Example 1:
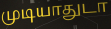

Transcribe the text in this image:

முடியாதுடா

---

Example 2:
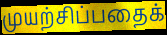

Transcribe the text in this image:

முயற்சிப்பதைக்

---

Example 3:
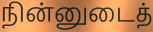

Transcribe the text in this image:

நின்னுடைத்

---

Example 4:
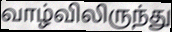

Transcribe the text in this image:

வாழ்விலிருந்து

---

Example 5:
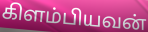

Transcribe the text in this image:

கிளம்பியவன்